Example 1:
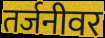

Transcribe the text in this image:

तर्जनीवर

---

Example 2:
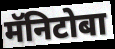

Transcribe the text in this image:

मॅनिटोबा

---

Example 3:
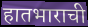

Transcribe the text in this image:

हातभाराची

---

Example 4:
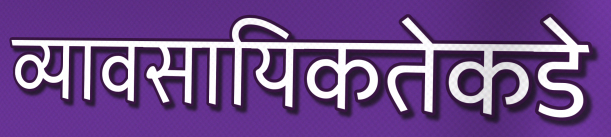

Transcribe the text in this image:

व्यावसायिकतेकडे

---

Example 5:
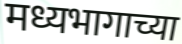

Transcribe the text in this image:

मध्यभागाच्या